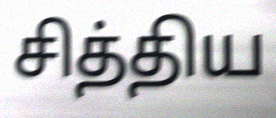
சித்திய